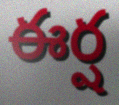
ఈర్ష